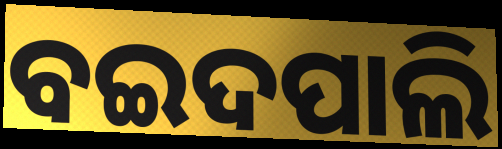
ବଇଦପାଲି